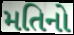
મતિનો